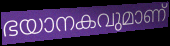
ഭയാനകവുമാണ്